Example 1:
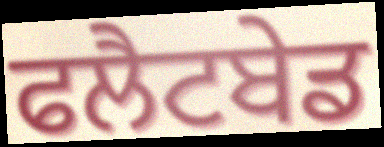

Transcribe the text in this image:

ਫਲੈਟਬੇਡ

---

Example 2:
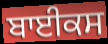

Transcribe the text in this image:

ਬਾਈਕਸ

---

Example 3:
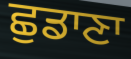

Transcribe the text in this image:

ਛੁਡਾਣਾ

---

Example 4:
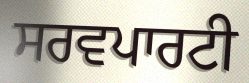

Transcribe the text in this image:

ਸਰਵਪਾਰਟੀ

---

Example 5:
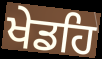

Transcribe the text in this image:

ਖੇਡਹਿ